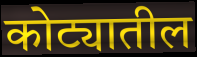
कोट्यातील